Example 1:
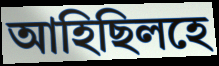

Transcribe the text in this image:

আহিছিলহে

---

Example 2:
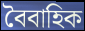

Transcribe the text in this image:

বৈবাহিক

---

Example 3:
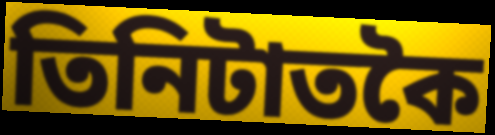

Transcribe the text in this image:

তিনিটাতকৈ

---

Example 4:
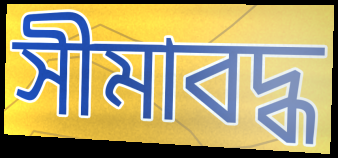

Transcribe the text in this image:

সীমাবদ্ধ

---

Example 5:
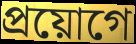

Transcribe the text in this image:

প্ৰয়োগে